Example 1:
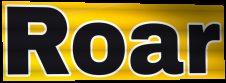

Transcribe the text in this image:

Roar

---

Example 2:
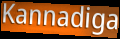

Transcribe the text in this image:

Kannadiga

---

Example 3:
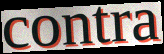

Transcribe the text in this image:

contra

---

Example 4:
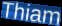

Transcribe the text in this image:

Thiam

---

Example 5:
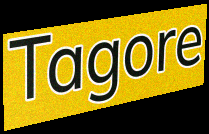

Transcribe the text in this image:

Tagore